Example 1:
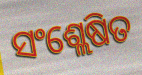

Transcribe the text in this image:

ସଂଶ୍ଲେଷିତ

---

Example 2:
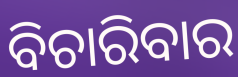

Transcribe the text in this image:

ବିଚାରିବାର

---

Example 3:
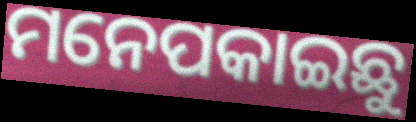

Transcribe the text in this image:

ମନେପକାଇଛୁ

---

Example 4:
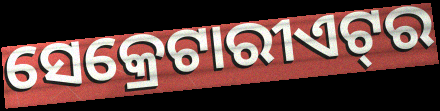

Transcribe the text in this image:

ସେକ୍ରେଟାରୀଏଟ୍‍ର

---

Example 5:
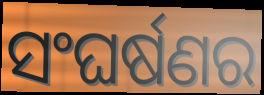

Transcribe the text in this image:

ସଂଘର୍ଷଣର